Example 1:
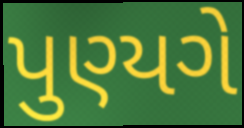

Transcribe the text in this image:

પુણ્યગે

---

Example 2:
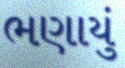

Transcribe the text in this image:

ભણાયું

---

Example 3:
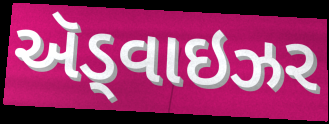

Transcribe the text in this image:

ઍડ્વાઇઝર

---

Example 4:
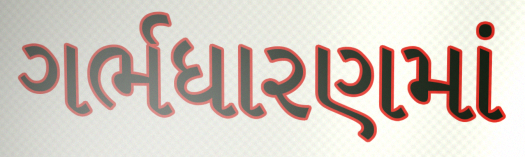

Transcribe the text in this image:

ગર્ભધારણમાં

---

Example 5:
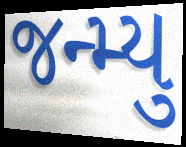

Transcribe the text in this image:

જન્મ્યુ